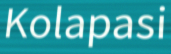
Kolapasi